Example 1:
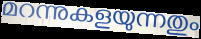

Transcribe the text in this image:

മറന്നുകളയുന്നതും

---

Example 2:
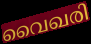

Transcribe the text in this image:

വൈഖരി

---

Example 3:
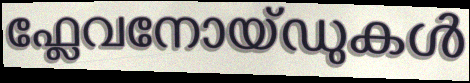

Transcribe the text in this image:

ഫ്ലേവനോയ്ഡുകൾ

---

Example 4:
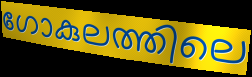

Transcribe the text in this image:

ഗോകുലത്തിലെ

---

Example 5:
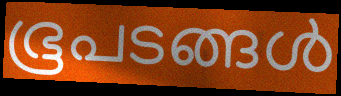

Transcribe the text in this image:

ഭൂപടങ്ങൾ